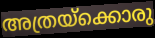
അത്രയ്ക്കൊരു